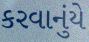
કરવાનુંયે